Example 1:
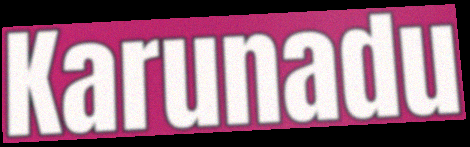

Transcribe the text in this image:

Karunadu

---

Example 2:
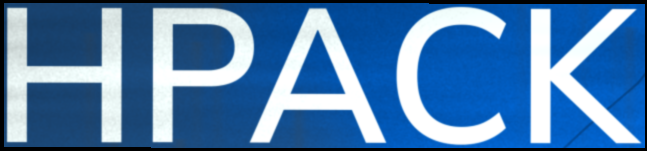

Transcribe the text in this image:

HPACK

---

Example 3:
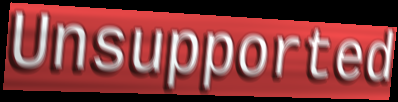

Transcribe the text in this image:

Unsupported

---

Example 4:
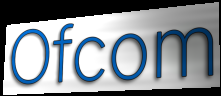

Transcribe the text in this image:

Ofcom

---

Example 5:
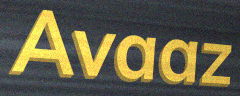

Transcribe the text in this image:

Avaaz